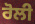
ਰੋਲੀ